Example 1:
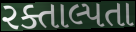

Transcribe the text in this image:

રક્તાલ્પતા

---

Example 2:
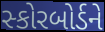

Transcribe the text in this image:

સ્કોરબોર્ડને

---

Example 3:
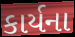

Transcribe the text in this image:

કાર્યના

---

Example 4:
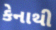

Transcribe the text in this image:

કેનાથી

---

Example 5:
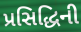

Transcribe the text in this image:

પ્રસિદ્ધિની